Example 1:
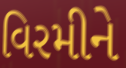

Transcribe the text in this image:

વિરમીને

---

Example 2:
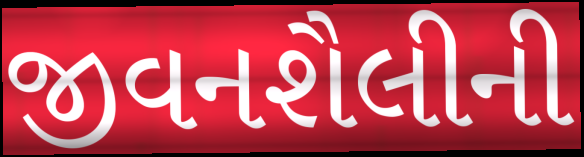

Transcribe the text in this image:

જીવનશૈલીની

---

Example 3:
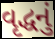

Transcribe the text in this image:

વૃદ્ધનું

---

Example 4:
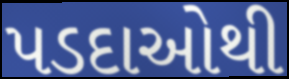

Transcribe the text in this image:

પડદાઓથી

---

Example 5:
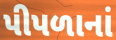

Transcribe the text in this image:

પીપળાનાં